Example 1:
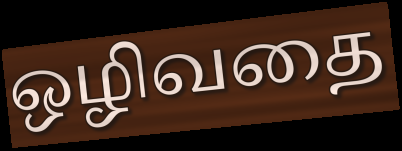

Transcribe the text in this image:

ஒழிவதை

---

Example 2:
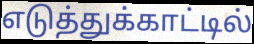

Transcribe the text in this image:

எடுத்துக்காட்டில்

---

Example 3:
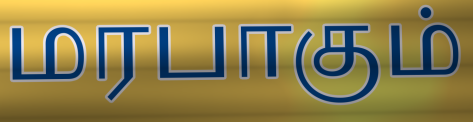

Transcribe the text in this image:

மரபாகும்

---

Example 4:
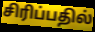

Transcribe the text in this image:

சிரிப்பதில்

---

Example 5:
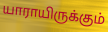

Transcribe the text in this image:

யாராயிருக்கும்